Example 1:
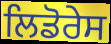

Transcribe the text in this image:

ਲਿਡੋਰੇਸ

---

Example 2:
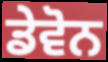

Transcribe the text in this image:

ਡੇਵੋਨ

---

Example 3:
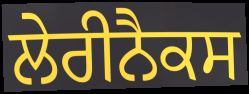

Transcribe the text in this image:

ਲੇਰੀਨੈਕਸ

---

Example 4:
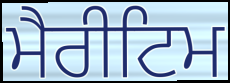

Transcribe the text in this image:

ਮੈਰੀਟਿਮ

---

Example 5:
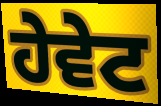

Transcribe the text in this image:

ਹੇਵੇਟ